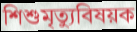
শিশুমৃত্যুবিষয়ক